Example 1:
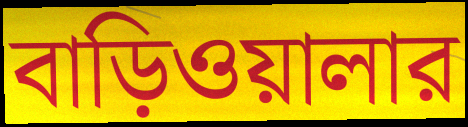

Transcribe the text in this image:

বাড়িওয়ালার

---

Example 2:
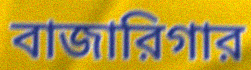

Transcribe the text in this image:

বাজারিগার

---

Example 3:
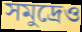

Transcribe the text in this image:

সমুদ্রেও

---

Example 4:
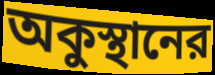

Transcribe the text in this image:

অকুস্থানের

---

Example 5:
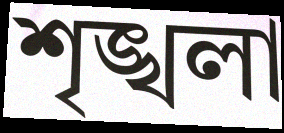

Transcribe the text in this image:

শৃঙ্খলা